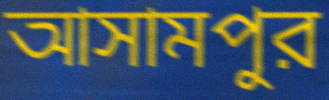
আসামপুর